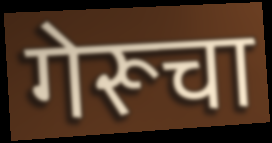
गेरूचा